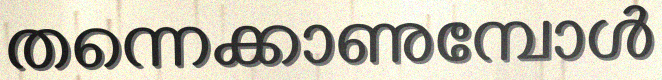
തന്നെക്കാണുമ്പോൾ